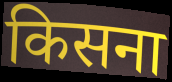
किसना